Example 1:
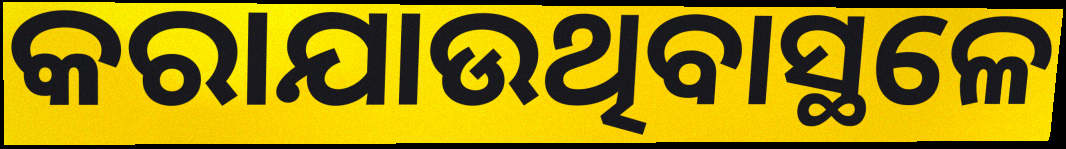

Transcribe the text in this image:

କରାଯାଉଥିବାସ୍ଥଳେ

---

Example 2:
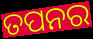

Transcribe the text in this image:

ତପନର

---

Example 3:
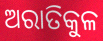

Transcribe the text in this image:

ଅରାତିକୁଳ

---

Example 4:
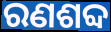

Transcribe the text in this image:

ରଣଶବ୍ଦ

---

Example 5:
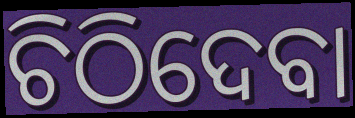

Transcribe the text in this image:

ଚିଠିଦେବା